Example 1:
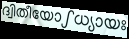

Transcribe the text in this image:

ദ്വിതീയോഽധ്യായഃ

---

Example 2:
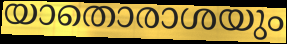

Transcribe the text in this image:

യാതൊരാശയും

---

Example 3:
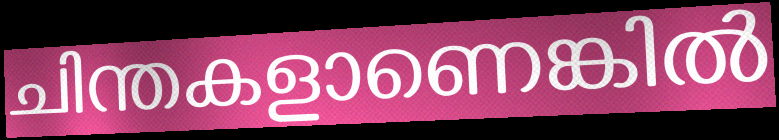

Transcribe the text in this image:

ചിന്തകളാണെങ്കിൽ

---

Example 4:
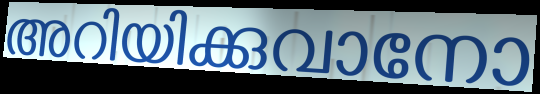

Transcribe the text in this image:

അറിയിക്കുവാനോ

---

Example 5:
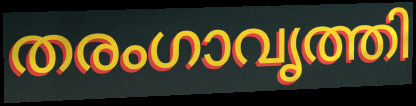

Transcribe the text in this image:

തരംഗാവൃത്തി